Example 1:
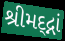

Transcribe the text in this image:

શ્રીમદ્દ્નાં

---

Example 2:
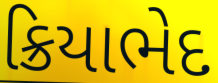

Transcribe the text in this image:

ક્રિયાભેદ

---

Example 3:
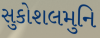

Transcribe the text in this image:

સુકોશલમુનિ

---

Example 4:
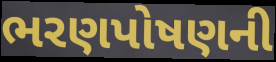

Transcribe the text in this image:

ભરણપોષણની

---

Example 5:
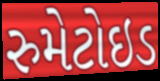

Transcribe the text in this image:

રુમેટોઇડ